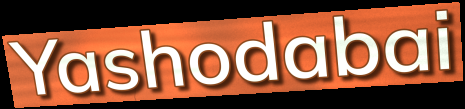
Yashodabai